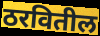
ठरवितील